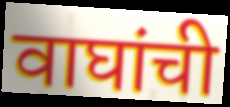
वाघांची